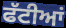
ਫੱਟੀਆਂ